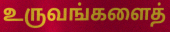
உருவங்களைத்